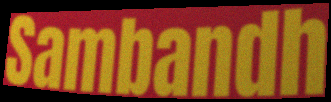
Sambandh